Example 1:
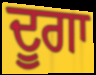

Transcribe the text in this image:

ਦੂਗਾ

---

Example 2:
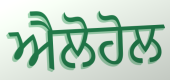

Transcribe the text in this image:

ਐਲੋਹੋਲ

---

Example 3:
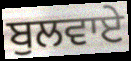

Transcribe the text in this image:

ਬੁਲਵਾਏ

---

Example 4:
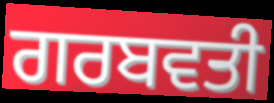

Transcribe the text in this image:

ਗਰਬਵਤੀ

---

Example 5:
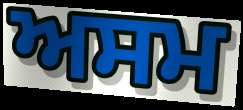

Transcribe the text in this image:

ਅਸਮ